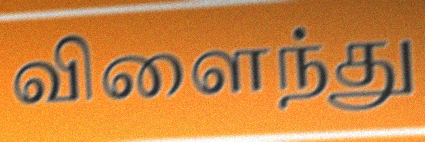
விளைந்து